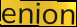
enion